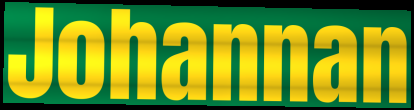
Johannan